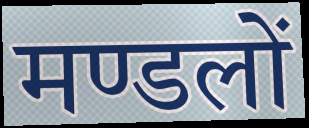
मण्‍डलों